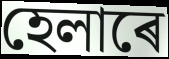
হেলাৰে